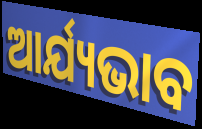
ଆର୍ଯ୍ୟଭାବ